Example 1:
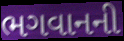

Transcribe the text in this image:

ભગવાનની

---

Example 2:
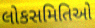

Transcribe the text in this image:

લોકસમિતિઓ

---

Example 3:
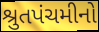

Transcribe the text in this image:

શ્રુતપંચમીનો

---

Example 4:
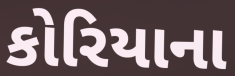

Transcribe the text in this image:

કોરિયાના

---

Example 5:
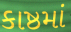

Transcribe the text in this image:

કાષ્ઠમાં